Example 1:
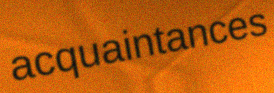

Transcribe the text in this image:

acquaintances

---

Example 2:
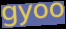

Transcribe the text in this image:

gyoo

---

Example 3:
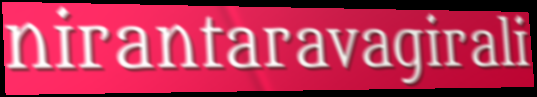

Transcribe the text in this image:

nirantaravagirali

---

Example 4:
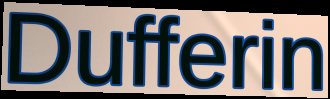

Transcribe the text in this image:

Dufferin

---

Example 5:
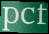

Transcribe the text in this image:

pct